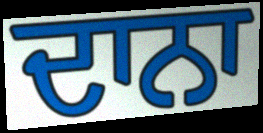
ਦਾਨਾ